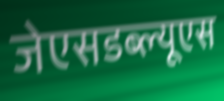
जेएसडब्ल्यूएस